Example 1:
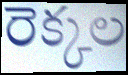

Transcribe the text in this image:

రెక్కల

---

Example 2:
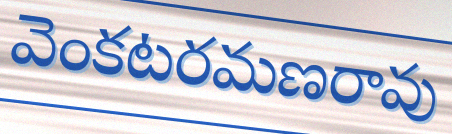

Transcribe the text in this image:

వెంకటరమణరావు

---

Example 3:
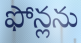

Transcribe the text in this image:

ఫోన్లను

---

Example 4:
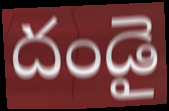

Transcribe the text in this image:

దండై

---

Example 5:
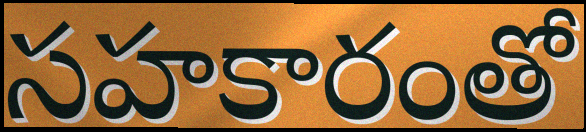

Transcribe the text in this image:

సహకారంతో